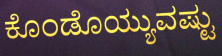
ಕೊಂಡೊಯ್ಯುವಷ್ಟು